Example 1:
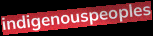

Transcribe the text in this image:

indigenouspeoples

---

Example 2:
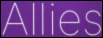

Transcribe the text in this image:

Allies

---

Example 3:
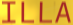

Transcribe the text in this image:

ILLA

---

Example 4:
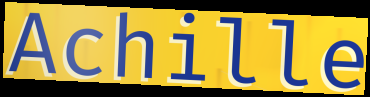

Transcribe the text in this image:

Achille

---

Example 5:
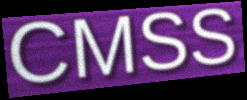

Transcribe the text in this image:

CMSS